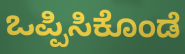
ಒಪ್ಪಿಸಿಕೊಂಡೆ